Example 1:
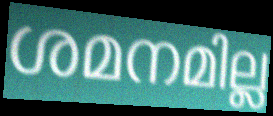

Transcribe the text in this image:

ശമനമില്ല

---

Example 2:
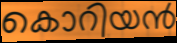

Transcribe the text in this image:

കൊറിയൻ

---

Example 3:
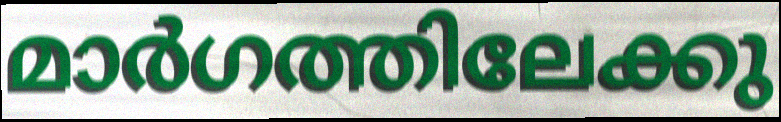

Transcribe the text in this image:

മാർഗത്തിലേക്കു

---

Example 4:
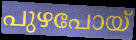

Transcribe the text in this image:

പുഴപോയ്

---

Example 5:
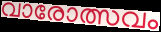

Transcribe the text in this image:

വാരോത്സവം